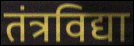
तंत्रविद्या